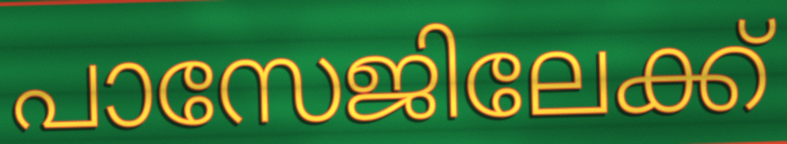
പാസേജിലേക്ക്